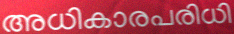
അധികാരപരിധി